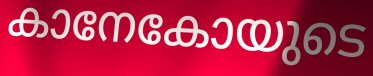
കാനേകോയുടെ